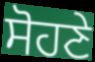
ਸੋਹਣੇ